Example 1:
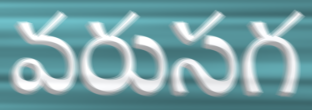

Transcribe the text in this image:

వరుసగ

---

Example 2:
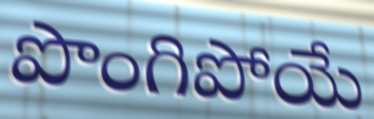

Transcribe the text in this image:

పొంగిపోయే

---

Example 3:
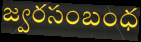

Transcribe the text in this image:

జ్వరసంబంధ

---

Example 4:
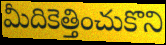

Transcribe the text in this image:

మీదికెత్తించుకొని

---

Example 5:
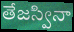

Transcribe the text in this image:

తేజస్వినా